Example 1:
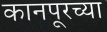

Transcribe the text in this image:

कानपूरच्या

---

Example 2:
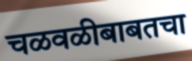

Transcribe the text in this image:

चळवळीबाबतचा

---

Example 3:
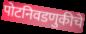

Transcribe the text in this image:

पोटनिवडणुकीचे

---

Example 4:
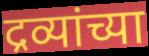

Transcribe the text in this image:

द्रव्यांच्या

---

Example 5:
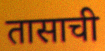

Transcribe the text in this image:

तासाची